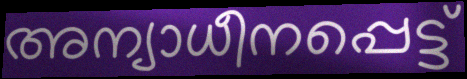
അന്യാധീനപ്പെട്ട്